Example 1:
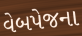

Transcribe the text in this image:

વેબપેજના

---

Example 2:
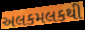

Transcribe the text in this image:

અલકમલકથી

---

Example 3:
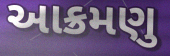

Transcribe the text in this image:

આક્રમણુ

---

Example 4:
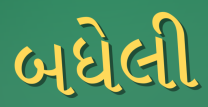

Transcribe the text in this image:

બધેલી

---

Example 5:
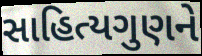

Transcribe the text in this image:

સાહિત્યગુણને